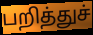
பறித்துச்